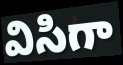
విసిగా